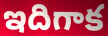
ఇదిగాక